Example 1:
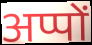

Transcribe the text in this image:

अप्पों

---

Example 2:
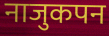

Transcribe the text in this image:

नाजुकपन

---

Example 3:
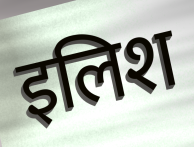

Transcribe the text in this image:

इलिश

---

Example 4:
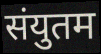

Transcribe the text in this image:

संयुतम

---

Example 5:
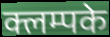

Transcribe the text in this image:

क्लम्पके